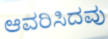
ಆವರಿಸಿದವು